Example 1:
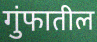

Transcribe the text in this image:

गुंफातील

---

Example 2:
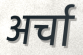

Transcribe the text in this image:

अर्चा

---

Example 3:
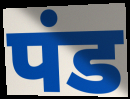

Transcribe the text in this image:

पंड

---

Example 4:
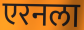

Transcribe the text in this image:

एरनला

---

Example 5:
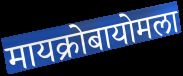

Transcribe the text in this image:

मायक्रोबायोमला